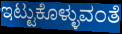
ಇಟ್ಟುಕೊಳ್ಳುವಂತೆ